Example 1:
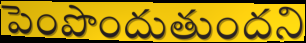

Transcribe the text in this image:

పెంపొందుతుందని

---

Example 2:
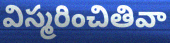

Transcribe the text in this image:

విస్మరించితివా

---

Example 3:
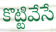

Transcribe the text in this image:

కొట్టివేసే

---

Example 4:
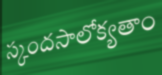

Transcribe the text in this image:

స్కందసాలోక్యతాం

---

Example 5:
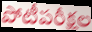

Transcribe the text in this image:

పోటీపరీక్షల